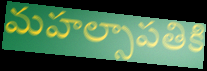
మహల్సాపతికి